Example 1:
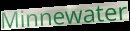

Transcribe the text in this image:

Minnewater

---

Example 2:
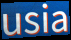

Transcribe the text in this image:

usia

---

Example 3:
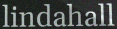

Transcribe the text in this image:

lindahall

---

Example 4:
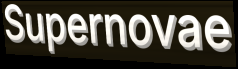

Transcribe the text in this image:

Supernovae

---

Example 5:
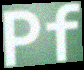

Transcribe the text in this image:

Pf